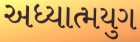
અધ્યાત્મયુગ